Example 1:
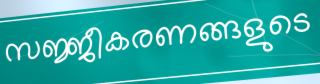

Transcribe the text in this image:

സജ്ജീകരണങ്ങളുടെ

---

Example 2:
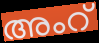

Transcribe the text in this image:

അംറ്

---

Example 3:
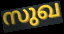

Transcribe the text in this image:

സുഖ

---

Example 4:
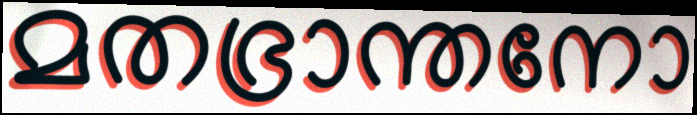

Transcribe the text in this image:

മതഭ്രാന്തനോ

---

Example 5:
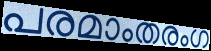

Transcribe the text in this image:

പരമാംതരംഗ